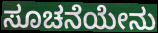
ಸೂಚನೆಯೇನು